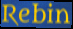
Rebin